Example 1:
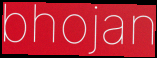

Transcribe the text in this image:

bhojan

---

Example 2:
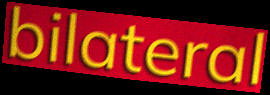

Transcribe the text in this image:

bilateral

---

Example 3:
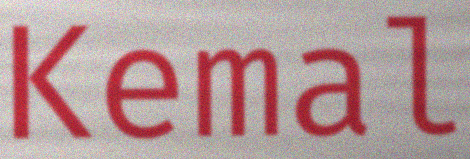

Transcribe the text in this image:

Kemal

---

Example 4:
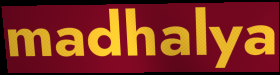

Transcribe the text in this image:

madhalya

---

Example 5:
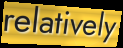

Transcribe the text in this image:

relatively